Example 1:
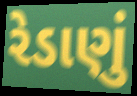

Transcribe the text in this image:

રેડાણું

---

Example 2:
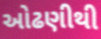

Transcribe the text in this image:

ઓઢણીથી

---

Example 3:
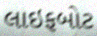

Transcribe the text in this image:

લાઇફબોટ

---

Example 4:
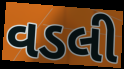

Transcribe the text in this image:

વડલી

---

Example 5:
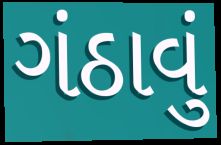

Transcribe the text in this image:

ગંઠાવું